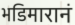
भडिमारानं